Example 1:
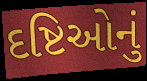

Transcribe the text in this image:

દષ્ટિઓનું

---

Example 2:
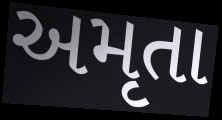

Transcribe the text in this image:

અમૃતા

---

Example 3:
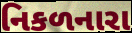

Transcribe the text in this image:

નિકળનારા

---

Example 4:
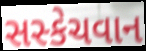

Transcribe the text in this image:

સસ્કેચવાન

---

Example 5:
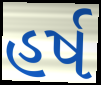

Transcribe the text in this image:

હર્ષ